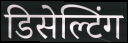
डिसेल्टिंग